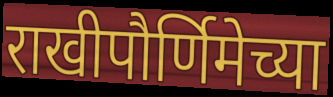
राखीपौर्णिमेच्या